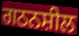
ਗਠਨਸ਼ੀਲ